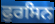
ਫੁਰਸਿਨ